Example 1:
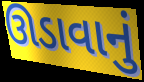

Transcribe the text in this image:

ઊડાવાનું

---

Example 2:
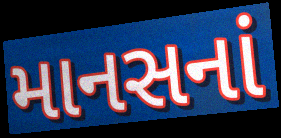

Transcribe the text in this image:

માનસનાં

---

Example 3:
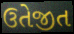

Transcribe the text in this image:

ઉતેજીત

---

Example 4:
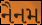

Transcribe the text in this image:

નૈનમ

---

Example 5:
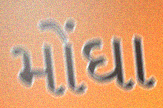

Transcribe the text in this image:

મોંઘા